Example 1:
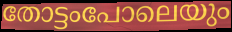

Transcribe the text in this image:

തോട്ടംപോലെയും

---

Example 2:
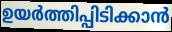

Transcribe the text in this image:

ഉയർത്തിപ്പിടിക്കാൻ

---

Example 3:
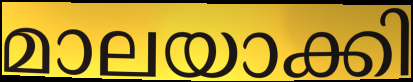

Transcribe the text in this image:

മാലയാക്കി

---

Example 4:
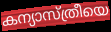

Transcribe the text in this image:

കന്യാസ്ത്രീയെ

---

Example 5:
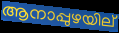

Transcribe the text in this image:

ആനാപ്പുഴയില്